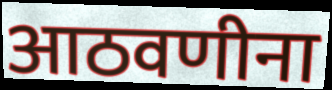
आठवणीना